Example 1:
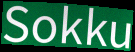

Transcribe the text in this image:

Sokku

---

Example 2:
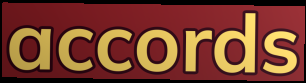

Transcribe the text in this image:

accords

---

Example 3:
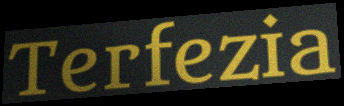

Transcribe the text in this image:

Terfezia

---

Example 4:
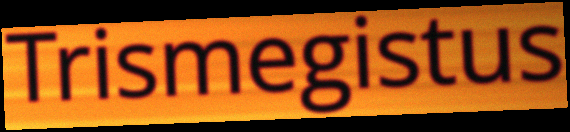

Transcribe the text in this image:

Trismegistus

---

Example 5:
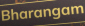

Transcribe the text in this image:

Bharangam